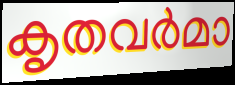
കൃതവർമാ